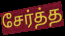
சேர்த்த